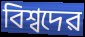
বিশ্বদেৱ